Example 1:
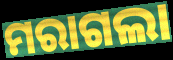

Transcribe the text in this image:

ମରାଗଲା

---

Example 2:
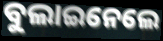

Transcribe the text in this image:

ବୁଲାଇନେଲେ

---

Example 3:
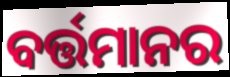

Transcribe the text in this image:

ବର୍ତ୍ତମାନର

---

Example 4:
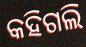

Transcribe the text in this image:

କହିଗଲି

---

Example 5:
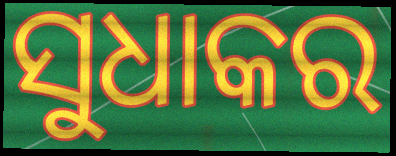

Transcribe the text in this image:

ସୁଧାକର